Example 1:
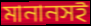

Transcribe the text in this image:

মানানসই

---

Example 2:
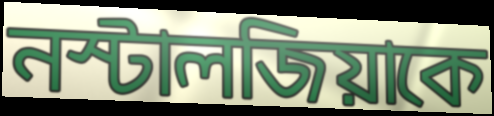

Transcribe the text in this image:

নস্টালজিয়াকে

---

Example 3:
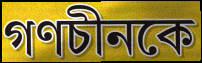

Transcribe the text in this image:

গণচীনকে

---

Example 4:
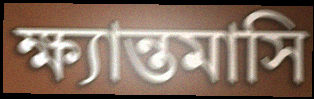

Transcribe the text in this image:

ক্ষ্যান্তমাসি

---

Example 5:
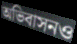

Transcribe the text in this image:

অভিবাসনও